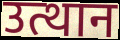
उत्थान